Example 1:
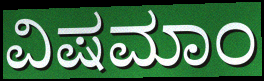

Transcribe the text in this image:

ವಿಷಮಾಂ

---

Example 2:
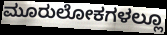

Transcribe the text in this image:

ಮೂರುಲೋಕಗಳಲ್ಲೂ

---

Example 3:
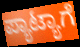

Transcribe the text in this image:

ಪ್ಯಾಟ್ಯಾಗೆ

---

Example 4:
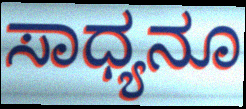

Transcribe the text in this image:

ಸಾಧ್ಯನೂ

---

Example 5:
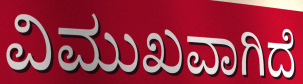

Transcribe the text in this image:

ವಿಮುಖವಾಗಿದೆ